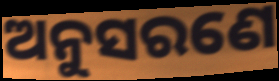
ଅନୁସରଣେ